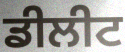
ਡੀਲੀਟ